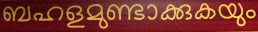
ബഹളമുണ്ടാക്കുകയും